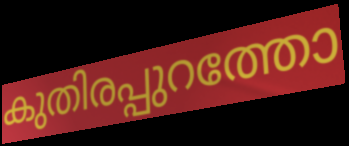
കുതിരപ്പുറത്തോ